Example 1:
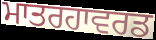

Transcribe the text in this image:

ਮਾਤਰਹਾਵਰਡ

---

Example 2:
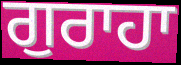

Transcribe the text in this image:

ਗੁਰਾਹਾ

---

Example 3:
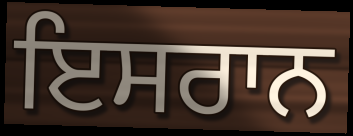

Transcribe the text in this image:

ਇਸਰਾਨ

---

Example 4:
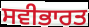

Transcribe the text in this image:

ਸਵੀਭਾਰਤ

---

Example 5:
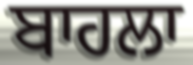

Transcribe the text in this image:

ਬਾਹਲਾ